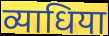
व्याधिया